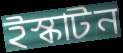
ইস্কাটন